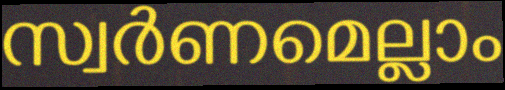
സ്വർണമെല്ലാം